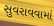
સુવરાવવામાં